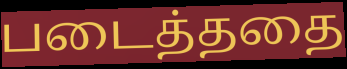
படைத்ததை